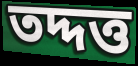
তদ্দত্ত